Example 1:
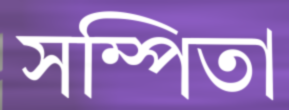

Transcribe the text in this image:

সম্পিতা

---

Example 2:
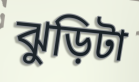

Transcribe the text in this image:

ঝুড়িটা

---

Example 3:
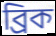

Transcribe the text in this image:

ব্রিক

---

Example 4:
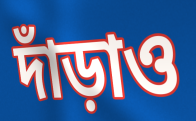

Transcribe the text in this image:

দাঁড়াও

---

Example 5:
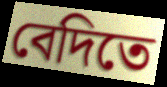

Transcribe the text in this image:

বেদিতে